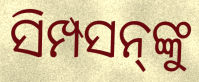
ସିମ୍ପସନ୍‍ଙ୍କୁ